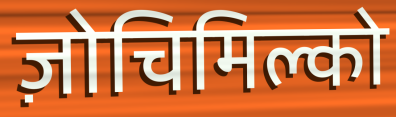
ज़ोचिमिल्को